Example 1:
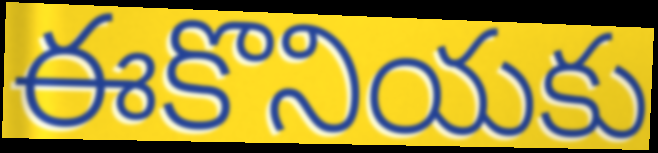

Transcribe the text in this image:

ఈకొనియకు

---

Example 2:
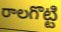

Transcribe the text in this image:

రాలగొట్టి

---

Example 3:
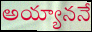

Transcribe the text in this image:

అయ్యాననే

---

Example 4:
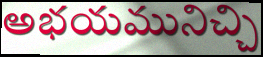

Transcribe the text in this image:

అభయమునిచ్చి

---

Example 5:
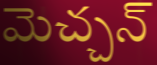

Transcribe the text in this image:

మెచ్చన్